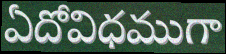
ఏదోవిధముగా